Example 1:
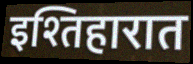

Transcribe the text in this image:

इश्तिहारात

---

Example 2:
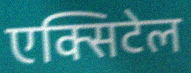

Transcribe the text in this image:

एक्सिटेल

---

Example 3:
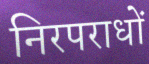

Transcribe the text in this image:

निरपराधों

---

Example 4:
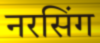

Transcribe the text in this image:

नरसिंग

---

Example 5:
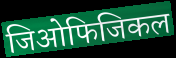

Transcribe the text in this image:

जिओफिजिकल